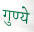
गुण्ये